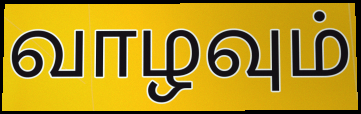
வாழவும்